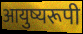
आयुष्यरूपी